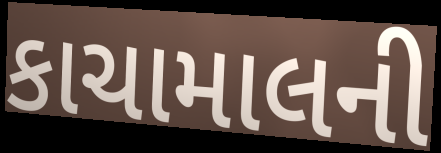
કાચામાલની